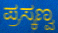
ಪ್ರಸ್ಕಣ್ವ